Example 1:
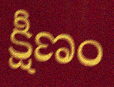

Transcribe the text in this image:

క్షీణం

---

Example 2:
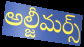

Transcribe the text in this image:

అల్జీమర్స్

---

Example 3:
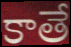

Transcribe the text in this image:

కాతే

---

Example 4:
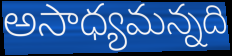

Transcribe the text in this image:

అసాధ్యమన్నది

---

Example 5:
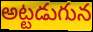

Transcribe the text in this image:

అట్టడుగున